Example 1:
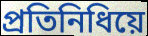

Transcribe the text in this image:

প্ৰতিনিধিয়ে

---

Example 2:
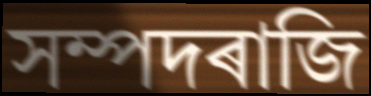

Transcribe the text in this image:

সম্পদৰাজি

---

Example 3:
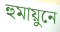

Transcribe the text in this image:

হুমায়ুনে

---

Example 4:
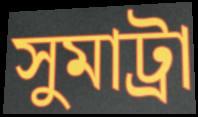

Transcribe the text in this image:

সুমাট্ৰা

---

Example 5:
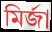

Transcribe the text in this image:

মিৰ্জা